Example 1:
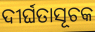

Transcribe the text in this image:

ଦୀର୍ଘତାସୂଚକ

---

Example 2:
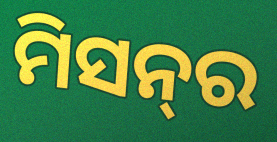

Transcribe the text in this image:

ମିସନ୍‌ର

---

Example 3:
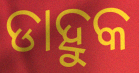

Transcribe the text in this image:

ଡାହୁକ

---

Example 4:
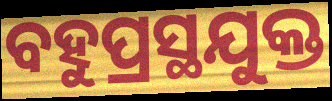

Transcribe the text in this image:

ବହୁପ୍ରସ୍ଥଯୁକ୍ତ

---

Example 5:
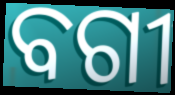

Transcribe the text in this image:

ବଗୀ